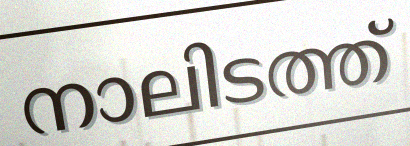
നാലിടത്ത്